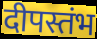
दीपस्तंभ